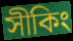
সীকিং